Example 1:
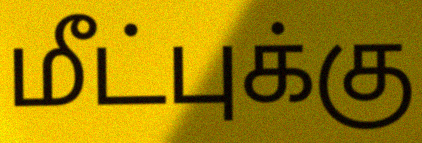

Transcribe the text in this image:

மீட்புக்கு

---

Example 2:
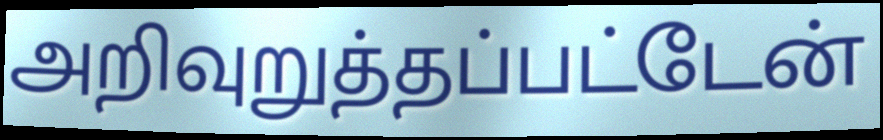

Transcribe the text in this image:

அறிவுறுத்தப்பட்டேன்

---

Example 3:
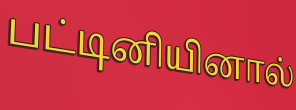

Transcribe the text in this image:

பட்டினியினால்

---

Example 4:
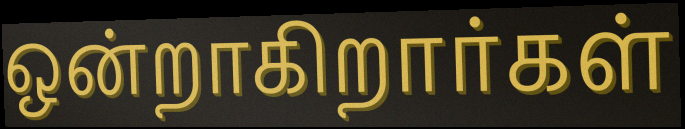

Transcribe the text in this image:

ஒன்றாகிறார்கள்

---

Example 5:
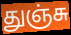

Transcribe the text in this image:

துஞ்சு